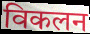
विकलन